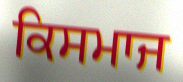
ਕਿਸਮਾਜ